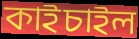
কাইচাইল